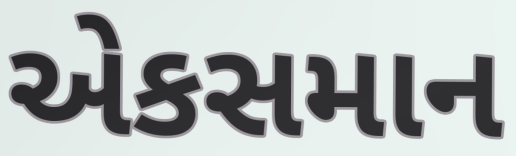
એકસમાન